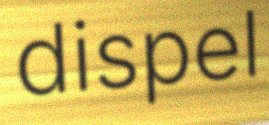
dispel